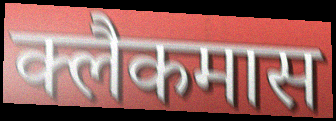
क्लैकमास